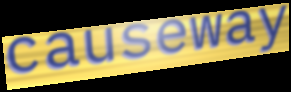
causeway